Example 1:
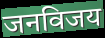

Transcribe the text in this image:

जनविजय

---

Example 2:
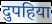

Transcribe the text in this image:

दुपहिया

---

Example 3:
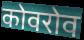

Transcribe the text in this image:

कोवरोव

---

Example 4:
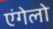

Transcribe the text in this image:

एंगेलो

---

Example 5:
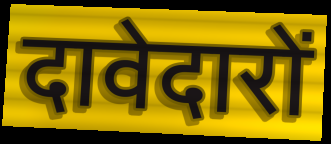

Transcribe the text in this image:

दावेदारों